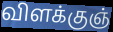
விளக்குஞ்